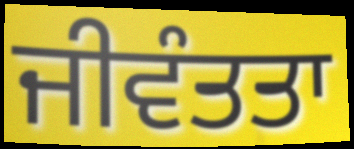
ਜੀਵੰਤਤਾ